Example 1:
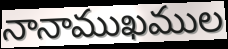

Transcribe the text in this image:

నానాముఖముల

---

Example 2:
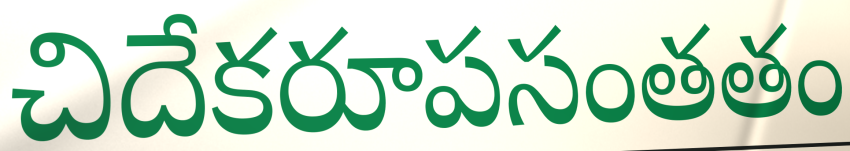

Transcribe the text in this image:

చిదేకరూపసంతతం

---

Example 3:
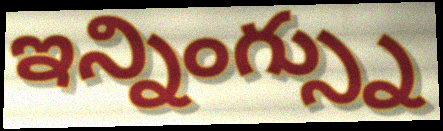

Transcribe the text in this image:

ఇన్నింగ్స్ను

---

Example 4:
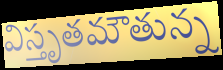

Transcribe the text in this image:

విస్తృతమౌతున్న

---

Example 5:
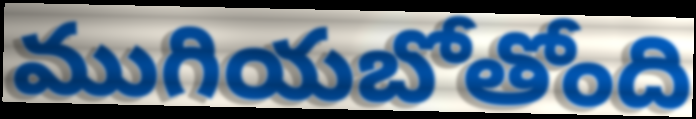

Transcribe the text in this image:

ముగియబోతోంది